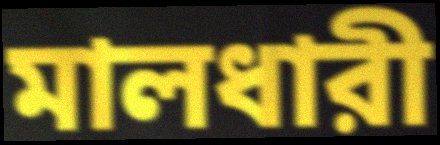
মালধারী